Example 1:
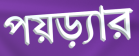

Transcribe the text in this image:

পয়ড়্যার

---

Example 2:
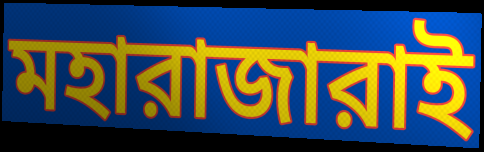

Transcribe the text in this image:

মহারাজারাই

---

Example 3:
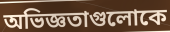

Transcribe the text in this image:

অভিজ্ঞতাগুলোকে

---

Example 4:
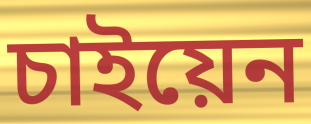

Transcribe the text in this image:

চাইয়েন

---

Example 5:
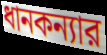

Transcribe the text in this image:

ধানকন্যার